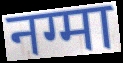
नग्मा